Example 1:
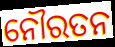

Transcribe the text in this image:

ନୌରତନ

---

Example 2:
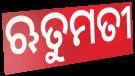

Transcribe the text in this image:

ଋତୁମତୀ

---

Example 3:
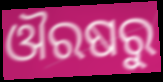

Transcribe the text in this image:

ଔରଷରୁ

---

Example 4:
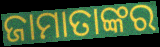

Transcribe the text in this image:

ଜାମାତାଙ୍କର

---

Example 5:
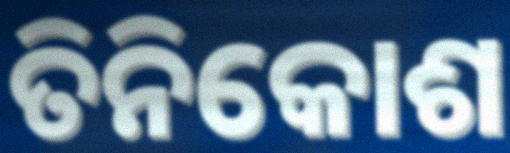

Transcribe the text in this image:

ତିନିକୋଶ